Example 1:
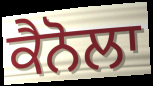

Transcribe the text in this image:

ਕੈਨੋਲਾ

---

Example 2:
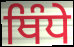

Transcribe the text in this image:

ਥਿੰਧੇ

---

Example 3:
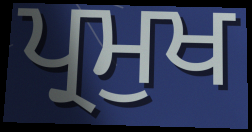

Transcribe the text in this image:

ਪ੍ਰਮੁਖ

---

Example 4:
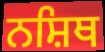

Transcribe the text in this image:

ਨਸ਼ਿਥ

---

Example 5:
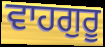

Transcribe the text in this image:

ਵਾਹਗੁਰੂ